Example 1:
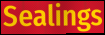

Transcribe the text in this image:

Sealings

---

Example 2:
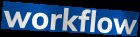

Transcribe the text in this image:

workflow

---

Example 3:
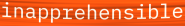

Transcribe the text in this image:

inapprehensible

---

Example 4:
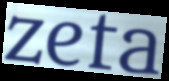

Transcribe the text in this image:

zeta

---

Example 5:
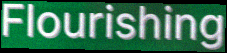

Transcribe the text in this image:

Flourishing